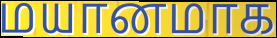
மயானமாக